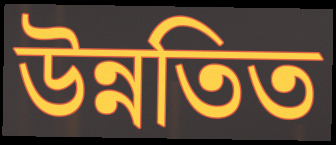
উন্নতিত